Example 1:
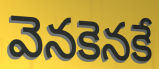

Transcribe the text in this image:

వెనకెనకే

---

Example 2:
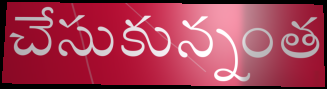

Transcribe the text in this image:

చేసుకున్నంత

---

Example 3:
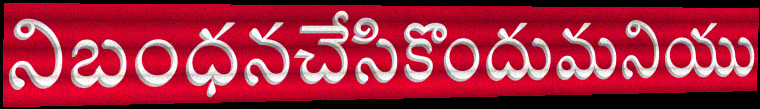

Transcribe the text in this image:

నిబంధనచేసికొందుమనియు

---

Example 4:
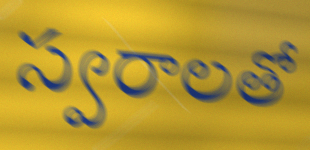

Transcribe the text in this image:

స్వరాలతో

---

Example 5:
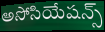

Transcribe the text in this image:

అసోసియేషన్స్